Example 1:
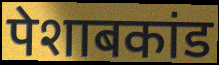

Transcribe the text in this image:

पेशाबकांड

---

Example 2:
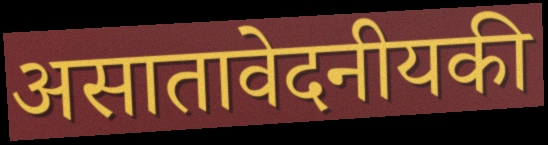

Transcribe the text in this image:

असातावेदनीयकी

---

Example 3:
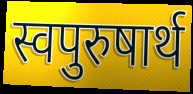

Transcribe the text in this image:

स्वपुरुषार्थ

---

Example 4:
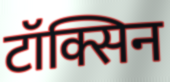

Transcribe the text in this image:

टॉक्सिन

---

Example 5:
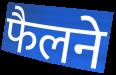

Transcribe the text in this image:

फैलने